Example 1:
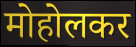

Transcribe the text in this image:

मोहोलकर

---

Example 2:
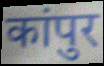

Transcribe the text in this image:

कांपुर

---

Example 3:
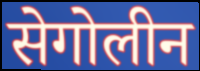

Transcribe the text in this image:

सेगोलीन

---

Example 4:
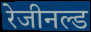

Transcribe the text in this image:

रेजीनल्ड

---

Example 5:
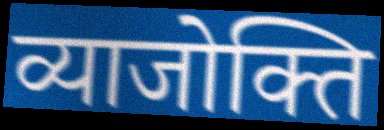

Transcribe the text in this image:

व्याजोक्ति